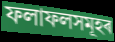
ফলাফলসমূহৰ